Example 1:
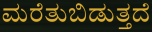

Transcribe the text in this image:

ಮರೆತುಬಿಡುತ್ತದೆ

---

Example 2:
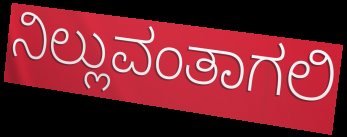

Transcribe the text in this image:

ನಿಲ್ಲುವಂತಾಗಲಿ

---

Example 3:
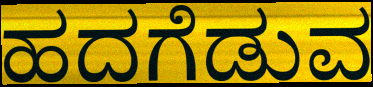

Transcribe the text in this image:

ಹದಗೆಡುವ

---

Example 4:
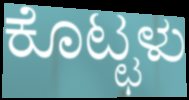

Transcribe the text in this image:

ಕೊಟ್ಟಳು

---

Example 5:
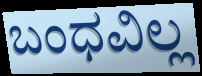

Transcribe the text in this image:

ಬಂಧವಿಲ್ಲ